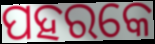
ପହରକେ